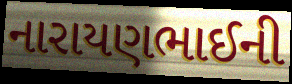
નારાયણભાઈની